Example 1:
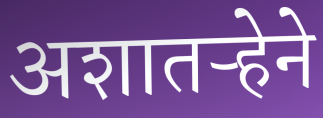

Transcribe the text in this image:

अशातऱ्हेने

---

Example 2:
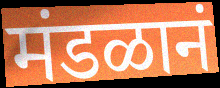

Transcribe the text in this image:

मंडळानं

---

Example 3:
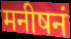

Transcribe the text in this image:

मनीषनं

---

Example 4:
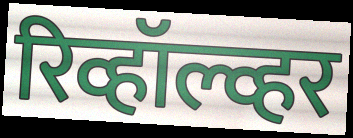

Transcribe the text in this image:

रिव्हॉल्व्हर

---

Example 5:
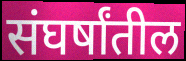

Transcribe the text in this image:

संघर्षांतील